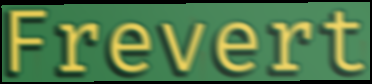
Frevert